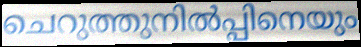
ചെറുത്തുനിൽപ്പിനെയും